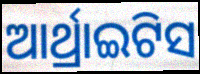
ଆର୍ଥ୍ରାଇଟିସ